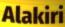
Alakiri